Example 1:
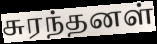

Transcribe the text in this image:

சுரந்தனள்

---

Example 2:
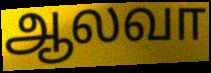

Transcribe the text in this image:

ஆலவா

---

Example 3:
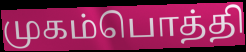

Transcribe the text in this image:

முகம்பொத்தி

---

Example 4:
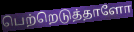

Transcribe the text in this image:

பெற்றெடுத்தாளோ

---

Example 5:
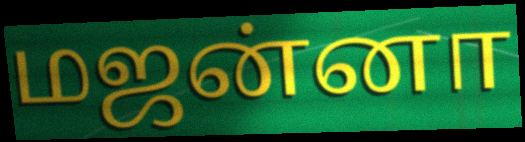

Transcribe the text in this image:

மஜன்னா